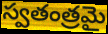
స్వతంత్రమై